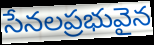
సేనలప్రభువైన